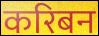
करिबन